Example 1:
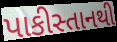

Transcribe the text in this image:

પાકીસ્તાનથી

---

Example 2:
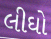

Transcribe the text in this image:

લીઘો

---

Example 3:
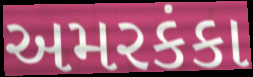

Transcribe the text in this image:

અમરકંકા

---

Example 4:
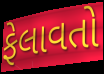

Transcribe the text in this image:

ફેલાવતો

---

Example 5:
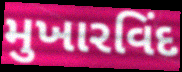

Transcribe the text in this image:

મુખારવિંદ